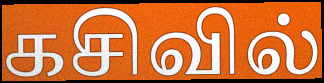
கசிவில்